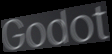
Godot